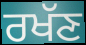
ਰਖੱਣ